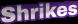
Shrikes